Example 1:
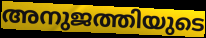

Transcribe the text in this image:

അനുജത്തിയുടെ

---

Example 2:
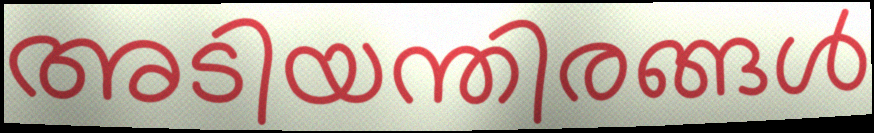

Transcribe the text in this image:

അടിയന്തിരങ്ങൾ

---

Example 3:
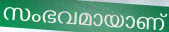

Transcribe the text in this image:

സംഭവമായാണ്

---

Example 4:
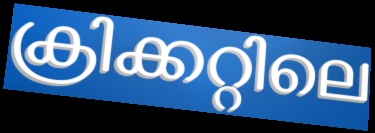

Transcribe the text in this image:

ക്രിക്കറ്റിലെ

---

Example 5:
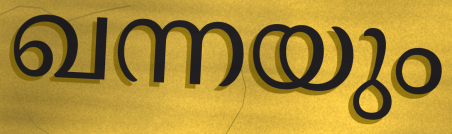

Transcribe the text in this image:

ഖന്നയും